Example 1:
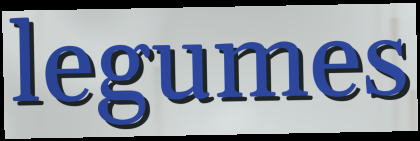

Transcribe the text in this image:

legumes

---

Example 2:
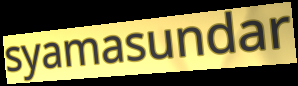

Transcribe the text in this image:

syamasundar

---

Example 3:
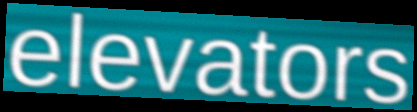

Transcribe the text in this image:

elevators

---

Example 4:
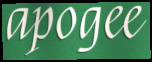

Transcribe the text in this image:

apogee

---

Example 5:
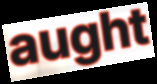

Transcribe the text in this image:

aught